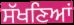
ਸੱਖਣਿਆਂ